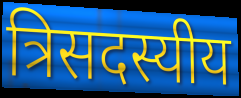
त्रिसदस्यीय